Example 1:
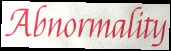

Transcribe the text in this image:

Abnormality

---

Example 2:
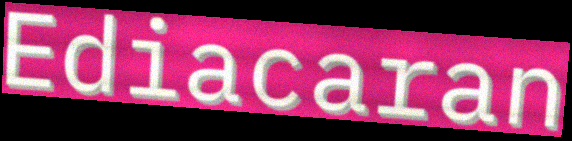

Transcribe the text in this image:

Ediacaran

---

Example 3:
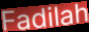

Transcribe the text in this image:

Fadilah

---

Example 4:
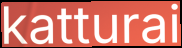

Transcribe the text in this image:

katturai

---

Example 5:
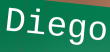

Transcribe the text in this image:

Diego